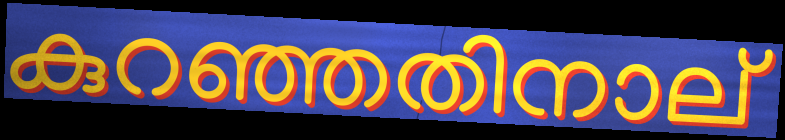
കുറഞ്ഞതിനാല്